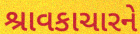
શ્રાવકાચારને